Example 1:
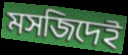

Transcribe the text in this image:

মসজিদেই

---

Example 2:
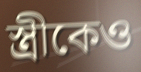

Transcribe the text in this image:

স্ত্রীকেও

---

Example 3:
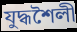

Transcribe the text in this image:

যুদ্ধশৈলী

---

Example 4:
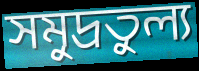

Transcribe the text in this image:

সমুদ্রতুল্য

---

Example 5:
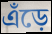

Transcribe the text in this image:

এঁড়ে